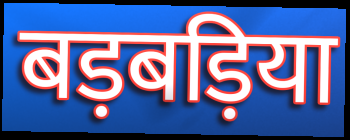
बड़बड़िया